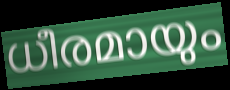
ധീരമായും